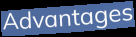
Advantages